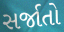
સર્જાતો